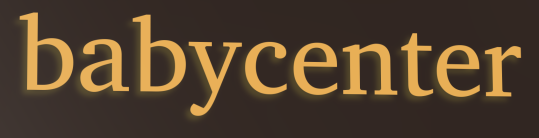
babycenter